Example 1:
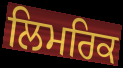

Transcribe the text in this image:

ਲਿਮਰਿਕ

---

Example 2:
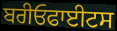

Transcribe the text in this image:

ਬਰੀਓਫਾਈਟਸ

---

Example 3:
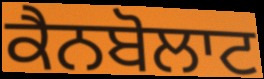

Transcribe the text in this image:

ਕੈਨਬੋਲਾਟ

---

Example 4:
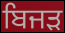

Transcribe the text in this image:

ਬਿਜੜ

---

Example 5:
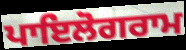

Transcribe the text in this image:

ਪਾਇਲੋਗਰਾਮ